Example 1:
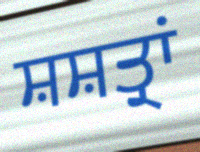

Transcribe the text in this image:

ਸ਼ਸ਼ਤ੍ਰਾਂ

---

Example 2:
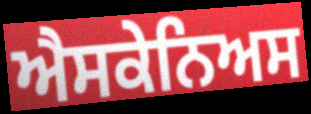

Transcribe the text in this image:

ਐਸਕੇਨਿਅਸ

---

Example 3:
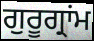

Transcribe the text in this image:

ਗੁਰੂਗ੍ਰਾਂਮ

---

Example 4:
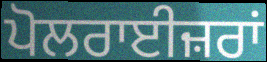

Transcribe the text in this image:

ਪੋਲਰਾਈਜ਼ਰਾਂ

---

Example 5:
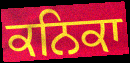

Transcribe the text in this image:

ਕਨਿਕਾ